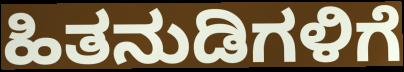
ಹಿತನುಡಿಗಳಿಗೆ